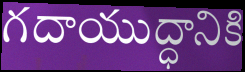
గదాయుద్ధానికి